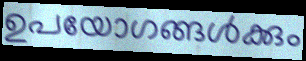
ഉപയോഗങ്ങൾക്കും